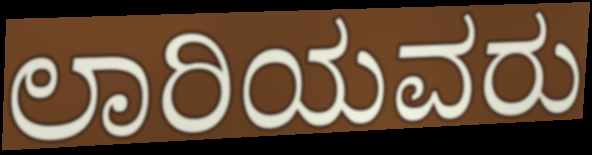
ಲಾರಿಯವರು